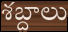
శబ్దాలు